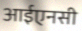
आईएनसी